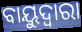
ବାୟୁଦ୍ୱାରା